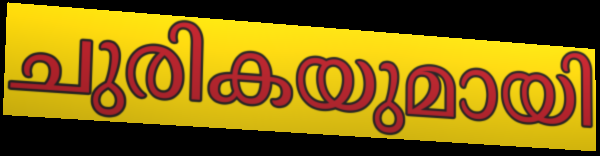
ചുരികയുമായി